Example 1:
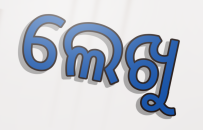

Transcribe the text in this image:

ଲେଖୁ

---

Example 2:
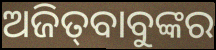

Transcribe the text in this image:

ଅଜିତ୍‍ବାବୁଙ୍କର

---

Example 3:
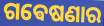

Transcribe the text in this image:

ଗଵେଷଣାର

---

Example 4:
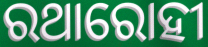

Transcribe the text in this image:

ରଥାରୋହୀ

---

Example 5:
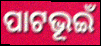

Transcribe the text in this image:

ପାଟଭୂଇଁ